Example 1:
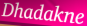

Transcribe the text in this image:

Dhadakne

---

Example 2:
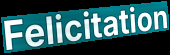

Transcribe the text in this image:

Felicitation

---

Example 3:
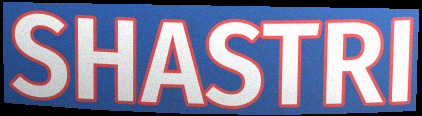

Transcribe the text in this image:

SHASTRI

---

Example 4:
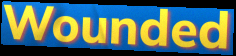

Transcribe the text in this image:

Wounded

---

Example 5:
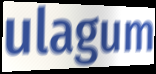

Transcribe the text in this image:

ulagum